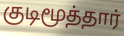
குடிமூத்தார்